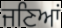
ਜਣਿਆਂ